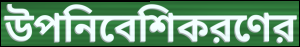
উপনিবেশিকরণের